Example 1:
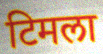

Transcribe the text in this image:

टिमला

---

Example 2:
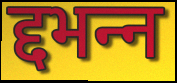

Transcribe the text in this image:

द्दभन्न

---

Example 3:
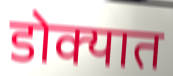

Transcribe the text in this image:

डोक्यात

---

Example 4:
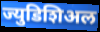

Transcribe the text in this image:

ज्युडिशिअल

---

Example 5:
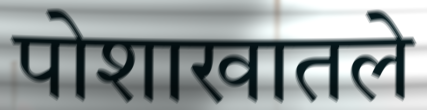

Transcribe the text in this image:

पोशाखातले